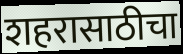
शहरासाठीचा